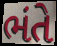
ભંતે